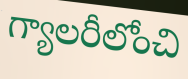
గ్యాలరీలోంచి